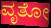
ವೃತೋ